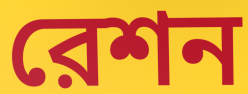
রেশন